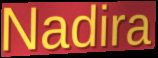
Nadira